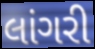
લાંગરી